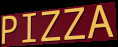
PIZZA